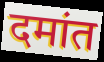
दमांत